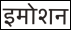
इमोशन